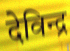
देविन्द्र